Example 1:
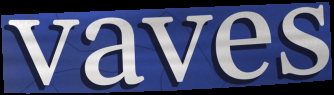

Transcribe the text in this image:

vaves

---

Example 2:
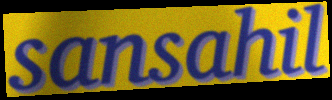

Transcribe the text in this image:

sansahil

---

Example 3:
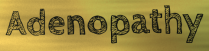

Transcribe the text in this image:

Adenopathy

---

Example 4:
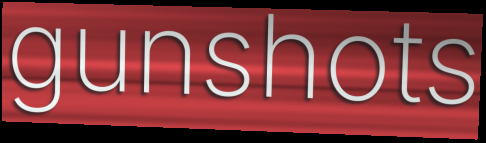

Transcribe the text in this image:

gunshots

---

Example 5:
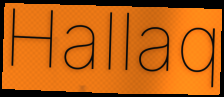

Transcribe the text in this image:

Hallaq